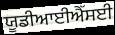
ਯੂਡੀਆਈਐੱਸਈ